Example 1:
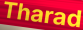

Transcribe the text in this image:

Tharad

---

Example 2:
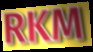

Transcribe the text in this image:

RKM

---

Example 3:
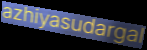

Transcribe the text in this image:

azhiyasudargal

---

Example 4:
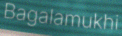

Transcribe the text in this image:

Bagalamukhi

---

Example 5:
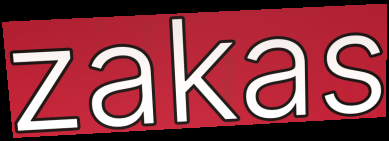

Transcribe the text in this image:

zakas